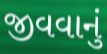
જીવવાનું